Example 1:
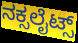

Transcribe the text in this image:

ನಕ್ಸಲೈಟ್ಸ್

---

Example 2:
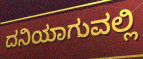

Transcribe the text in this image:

ದನಿಯಾಗುವಲ್ಲಿ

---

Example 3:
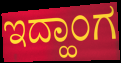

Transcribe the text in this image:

ಇದ್ಹಾಂಗ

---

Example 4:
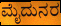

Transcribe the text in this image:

ಮೈದುನರ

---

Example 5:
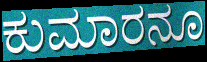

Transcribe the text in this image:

ಕುಮಾರನೂ